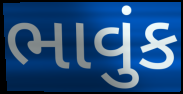
ભાવુંક